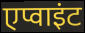
एप्वाइंट